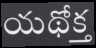
యథోక్త